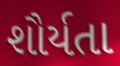
શૌર્યતા